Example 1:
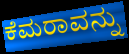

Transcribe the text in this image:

ಕೆಮರಾವನ್ನು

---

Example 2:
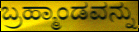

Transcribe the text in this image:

ಬ್ರಹ್ಮಾಂಡವನ್ನು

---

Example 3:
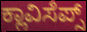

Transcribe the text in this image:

ಕ್ಲಾವಿಸೆಪ್ಸ್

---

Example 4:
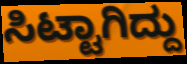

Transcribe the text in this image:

ಸಿಟ್ಟಾಗಿದ್ದು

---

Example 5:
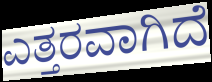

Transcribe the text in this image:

ಎತ್ತರವಾಗಿದೆ